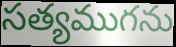
సత్యముగను